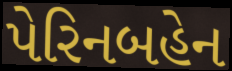
પેરિનબહેન